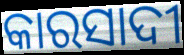
କାରସାଦୀ